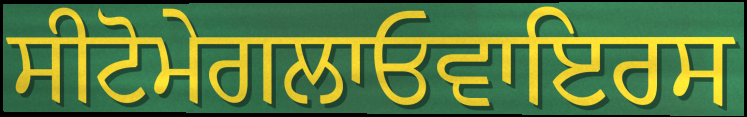
ਸੀਟੋਮੇਗਲਾਓਵਾਇਰਸ